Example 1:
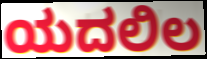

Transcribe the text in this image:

ಯದಲಿಲ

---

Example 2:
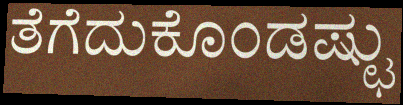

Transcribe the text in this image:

ತೆಗೆದುಕೊಂಡಷ್ಟು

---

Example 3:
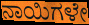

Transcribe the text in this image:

ನಾಯಿಗಳೇ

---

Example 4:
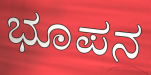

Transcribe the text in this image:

ಭೂಪನ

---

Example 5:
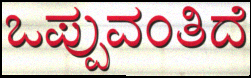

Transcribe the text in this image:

ಒಪ್ಪುವಂತಿದೆ